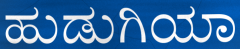
ಹುಡುಗಿಯಾ